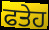
ਫਤੇਹ